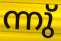
ന്നു്